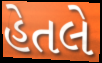
હેતલે